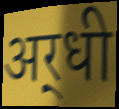
अर्धी